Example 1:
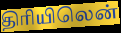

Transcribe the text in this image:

திரியிலென்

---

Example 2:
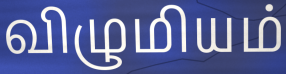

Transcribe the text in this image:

விழுமியம்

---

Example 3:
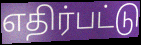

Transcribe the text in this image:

எதிர்பட்டு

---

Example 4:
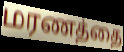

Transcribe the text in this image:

மரணத்தை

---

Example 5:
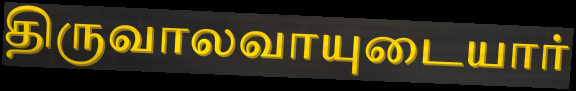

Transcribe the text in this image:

திருவாலவாயுடையார்